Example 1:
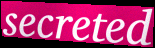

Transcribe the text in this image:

secreted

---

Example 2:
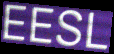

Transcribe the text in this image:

EESL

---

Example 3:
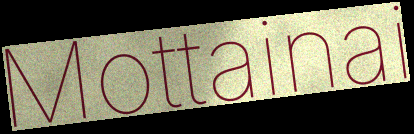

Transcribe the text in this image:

Mottainai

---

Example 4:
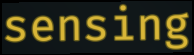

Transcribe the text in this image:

sensing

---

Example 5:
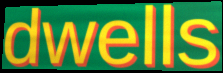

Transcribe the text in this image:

dwells